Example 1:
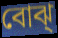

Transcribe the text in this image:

বোঝ্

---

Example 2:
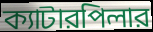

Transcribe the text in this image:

ক্যাটারপিলার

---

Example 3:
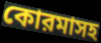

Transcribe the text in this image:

কোরমাসহ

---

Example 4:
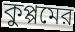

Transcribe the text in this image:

কুপ্পমের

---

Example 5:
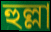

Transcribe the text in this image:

হুল্লা